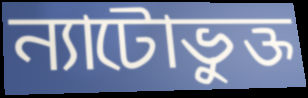
ন্যাটোভুক্ত